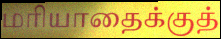
மரியாதைக்குத்